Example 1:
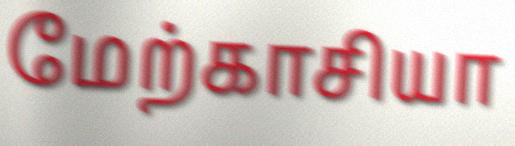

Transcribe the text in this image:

மேற்காசியா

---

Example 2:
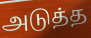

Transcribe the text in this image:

அடுத்த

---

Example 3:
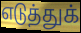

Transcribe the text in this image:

எடுத்துக்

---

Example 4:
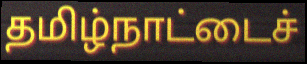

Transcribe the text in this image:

தமிழ்நாட்டைச்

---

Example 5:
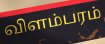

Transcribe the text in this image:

விளம்பரம்